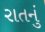
રાતનું